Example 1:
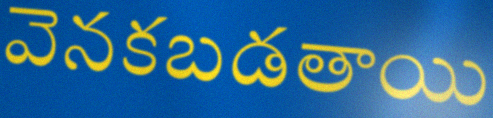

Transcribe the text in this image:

వెనకబడతాయి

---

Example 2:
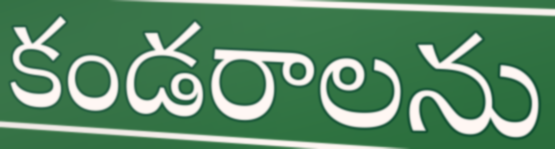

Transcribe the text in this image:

కండరాలను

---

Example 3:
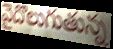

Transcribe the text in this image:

వైదొలుగుతున్న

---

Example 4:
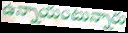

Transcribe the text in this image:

ఉన్నాయంటున్నారు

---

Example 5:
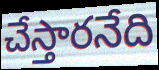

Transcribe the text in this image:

చేస్తారనేది